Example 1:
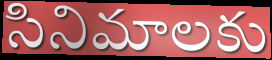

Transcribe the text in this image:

సినిమాలకు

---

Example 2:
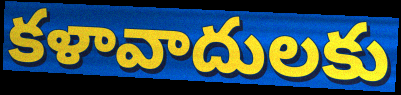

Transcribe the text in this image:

కళావాదులకు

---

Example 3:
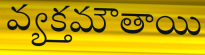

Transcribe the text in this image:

వ్యక్తమౌతాయి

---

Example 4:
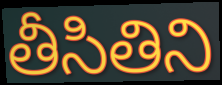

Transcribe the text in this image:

తీసితిని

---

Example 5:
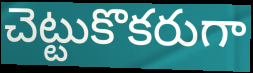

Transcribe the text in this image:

చెట్టుకొకరుగా